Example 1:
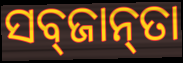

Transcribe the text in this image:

ସବ୍‌ଜାନ୍‌ତା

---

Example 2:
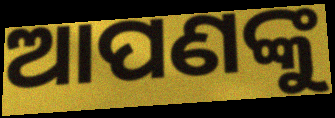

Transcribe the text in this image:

ଆପଣଙ୍କୁ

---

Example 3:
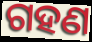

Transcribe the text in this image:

ଗହଣ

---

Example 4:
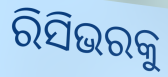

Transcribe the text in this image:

ରିସିଭରକୁ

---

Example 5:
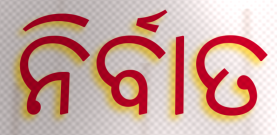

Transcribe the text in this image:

ନିର୍ବାତ